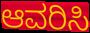
ಆವರಿಸಿ